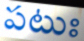
పటుః